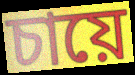
চায়ে